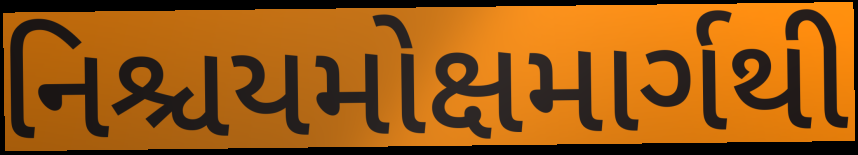
નિશ્ચયમોક્ષમાર્ગથી